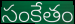
సంకేతం